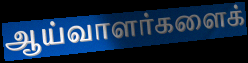
ஆய்வாளர்களைக்